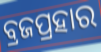
ବ୍ରଜପ୍ରହାର